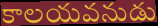
కాలయవనుడు